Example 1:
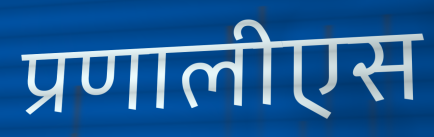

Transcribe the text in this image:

प्रणालीएस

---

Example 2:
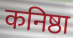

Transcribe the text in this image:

कनिष्ठा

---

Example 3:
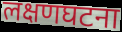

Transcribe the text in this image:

लक्षणघटना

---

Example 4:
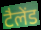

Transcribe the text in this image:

टैलेंड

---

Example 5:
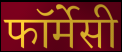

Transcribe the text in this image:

फॉर्मेसी